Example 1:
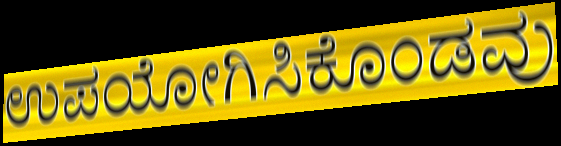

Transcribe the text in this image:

ಉಪಯೋಗಿಸಿಕೊಂಡವು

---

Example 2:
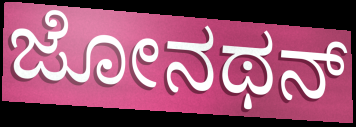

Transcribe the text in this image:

ಜೋನಥನ್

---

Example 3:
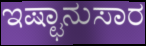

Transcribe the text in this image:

ಇಷ್ಟಾನುಸಾರ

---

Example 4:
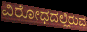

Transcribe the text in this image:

ವಿರೋಧದಲ್ಲಿರುವ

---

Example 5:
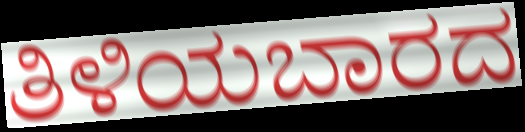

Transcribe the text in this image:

ತಿಳಿಯಬಾರದ